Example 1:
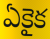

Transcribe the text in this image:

ఏకైక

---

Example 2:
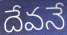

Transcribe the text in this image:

దేవనే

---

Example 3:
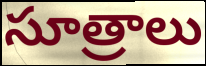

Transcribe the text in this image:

సూత్రాలు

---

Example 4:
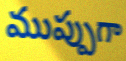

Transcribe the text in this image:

ముప్పుగా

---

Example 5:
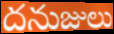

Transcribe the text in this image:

దనుజులు